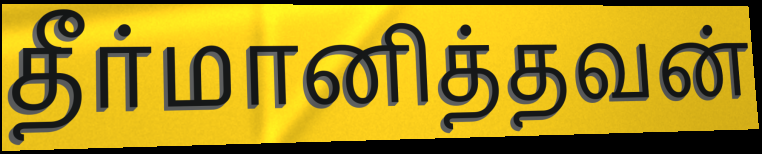
தீர்மானித்தவன்